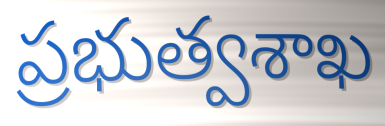
ప్రభుత్వశాఖ